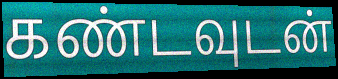
கண்டவுடன்